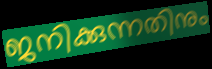
ജനിക്കുന്നതിനും